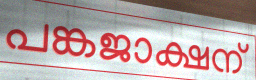
പങ്കജാക്ഷന്